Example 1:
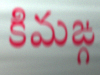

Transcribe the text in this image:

కిమఙ్గ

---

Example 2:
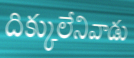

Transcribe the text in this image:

దిక్కులేనివాడు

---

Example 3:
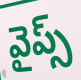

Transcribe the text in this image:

వైప్స్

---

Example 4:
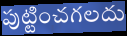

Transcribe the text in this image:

పుట్టించగలదు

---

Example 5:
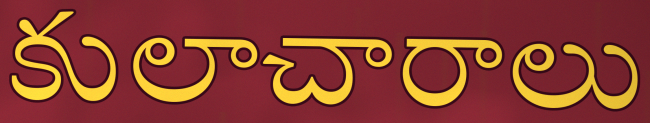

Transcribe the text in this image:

కులాచారాలు